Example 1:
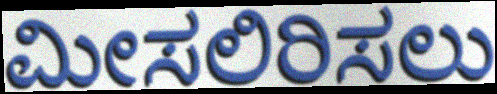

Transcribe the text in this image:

ಮೀಸಲಿರಿಸಲು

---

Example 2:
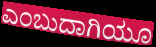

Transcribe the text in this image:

ಎಂಬುದಾಗಿಯೂ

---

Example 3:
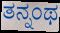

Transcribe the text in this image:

ತನ್ನಂಥ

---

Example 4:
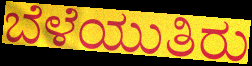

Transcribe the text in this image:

ಬೆಳೆಯುತಿರು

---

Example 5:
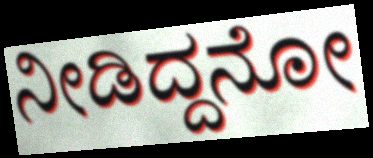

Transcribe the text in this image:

ನೀಡಿದ್ದನೋ